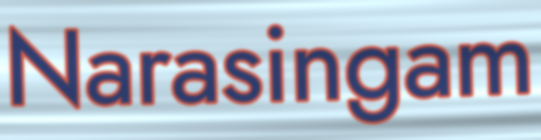
Narasingam